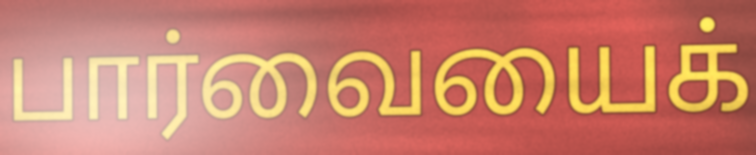
பார்வையைக்